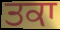
ਤਕਾ